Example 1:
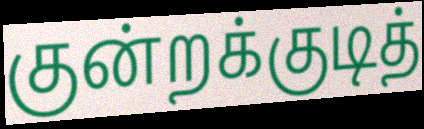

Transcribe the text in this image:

குன்றக்குடித்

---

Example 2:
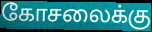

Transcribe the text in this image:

கோசலைக்கு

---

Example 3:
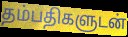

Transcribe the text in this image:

தம்பதிகளுடன்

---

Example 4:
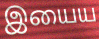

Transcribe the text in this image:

இயைய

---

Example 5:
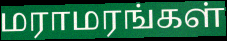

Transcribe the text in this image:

மராமரங்கள்